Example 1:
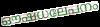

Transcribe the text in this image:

ഔഷധലേപനം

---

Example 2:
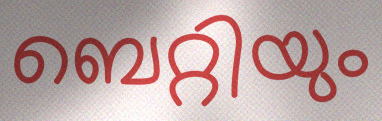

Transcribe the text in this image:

ബെറ്റിയും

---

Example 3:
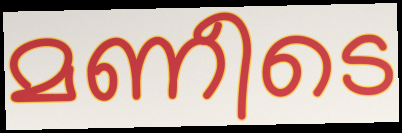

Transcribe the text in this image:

മണീടെ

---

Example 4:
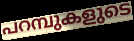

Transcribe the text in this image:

പറമ്പുകളുടെ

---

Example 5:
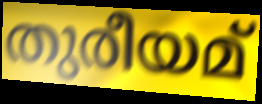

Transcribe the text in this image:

തുരീയമ്